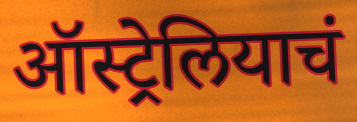
ऑस्ट्रेलियाचं